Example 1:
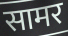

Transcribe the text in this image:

सामर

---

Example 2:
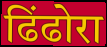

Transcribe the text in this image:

ढिंढोरा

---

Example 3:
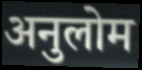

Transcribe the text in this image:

अनुलोम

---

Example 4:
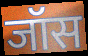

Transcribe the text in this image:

जॉस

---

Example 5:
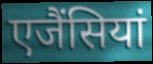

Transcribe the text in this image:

एजैंसियां